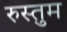
रुस्तुम